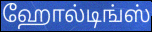
ஹோல்டிங்ஸ்